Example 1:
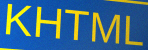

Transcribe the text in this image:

KHTML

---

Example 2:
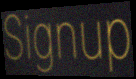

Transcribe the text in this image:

Signup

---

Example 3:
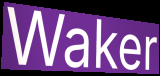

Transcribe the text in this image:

Waker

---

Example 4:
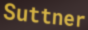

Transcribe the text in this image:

Suttner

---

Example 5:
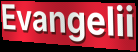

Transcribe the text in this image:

Evangelii